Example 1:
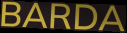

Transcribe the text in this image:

BARDA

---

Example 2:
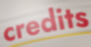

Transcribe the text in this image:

credits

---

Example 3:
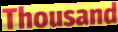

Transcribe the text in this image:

Thousand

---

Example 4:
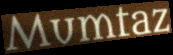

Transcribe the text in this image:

Mumtaz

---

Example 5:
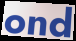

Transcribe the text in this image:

ond